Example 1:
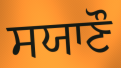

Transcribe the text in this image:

ਸਯਾਣੌ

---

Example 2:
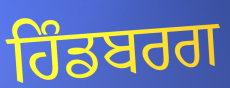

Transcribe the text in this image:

ਹਿੰਡਬਰਗ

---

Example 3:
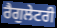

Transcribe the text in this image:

ਰੈਗੁਲੇਟਰੀ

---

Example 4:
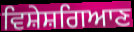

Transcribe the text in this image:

ਵਿਸ਼ੇਸ਼ਗਿਆਣ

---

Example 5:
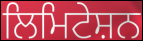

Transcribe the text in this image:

ਲਿਮਿਟੇਸ਼ਨ